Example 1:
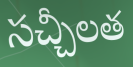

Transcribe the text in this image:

సచ్చీలత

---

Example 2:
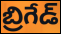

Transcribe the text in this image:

బ్రిగేడ్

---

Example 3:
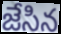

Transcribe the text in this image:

జేసిన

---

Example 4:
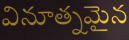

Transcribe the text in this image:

వినూత్నమైన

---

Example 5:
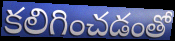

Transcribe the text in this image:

కలిగించడంతో